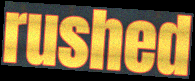
rushed